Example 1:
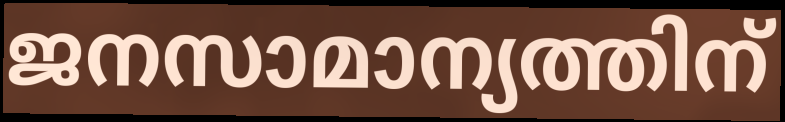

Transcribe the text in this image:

ജനസാമാന്യത്തിന്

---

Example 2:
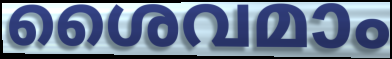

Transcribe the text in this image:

ശൈവമാം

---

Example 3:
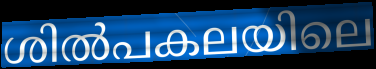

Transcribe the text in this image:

ശിൽപകലയിലെ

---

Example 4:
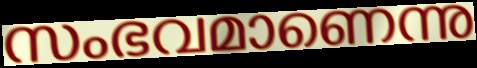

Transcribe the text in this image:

സംഭവമാണെന്നു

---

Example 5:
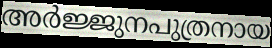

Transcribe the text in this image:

അർജ്ജുനപുത്രനായ